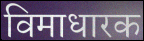
विमाधारक